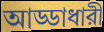
আড্ডাধারী